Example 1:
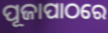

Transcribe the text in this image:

ପୂଜାପାଠରେ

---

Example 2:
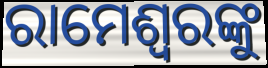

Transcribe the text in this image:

ରାମେଶ୍ୱରଙ୍କୁ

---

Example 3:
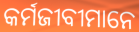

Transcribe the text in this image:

କର୍ମଜୀବୀମାନେ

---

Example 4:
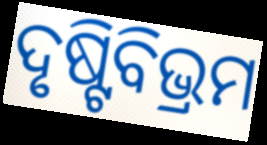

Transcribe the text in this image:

ଦୃଷ୍ଟିବିଭ୍ରମ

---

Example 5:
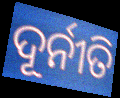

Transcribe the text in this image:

ଦୂର୍ନୀତି